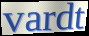
vardt